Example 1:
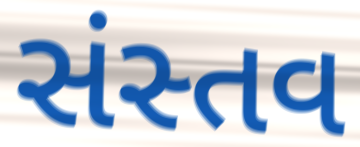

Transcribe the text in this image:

સંસ્તવ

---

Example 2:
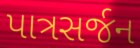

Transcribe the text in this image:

પાત્રસર્જન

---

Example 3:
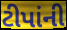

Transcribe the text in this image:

ટીપાંની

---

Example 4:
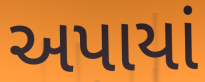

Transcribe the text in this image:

અપાયાં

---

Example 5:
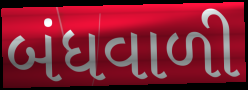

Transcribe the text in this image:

બંધવાળી